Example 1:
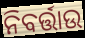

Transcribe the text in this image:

ନିବର୍ତ୍ତାଉ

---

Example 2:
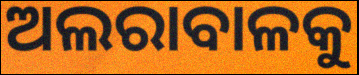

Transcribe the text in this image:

ଅଲରାବାଳକୁ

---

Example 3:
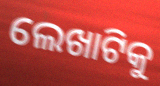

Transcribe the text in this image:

ଲେଖାଟିକୁ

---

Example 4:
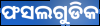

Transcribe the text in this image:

ଫସଲଗୁଡିକ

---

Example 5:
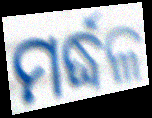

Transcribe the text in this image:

ମର୍ଦ୍ଧଳ